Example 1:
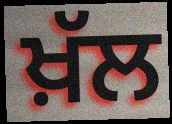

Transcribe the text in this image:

ਖ਼ੱਲ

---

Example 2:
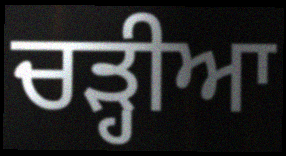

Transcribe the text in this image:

ਚੜ੍ਹੀਆ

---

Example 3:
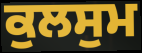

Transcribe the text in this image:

ਕੁਲਸੁਮ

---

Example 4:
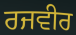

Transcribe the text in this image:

ਰਜਵੀਰ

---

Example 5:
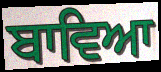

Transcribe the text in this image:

ਬਾਵਿਆ